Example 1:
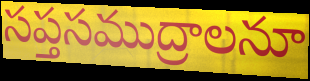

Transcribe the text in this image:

సప్తసముద్రాలనూ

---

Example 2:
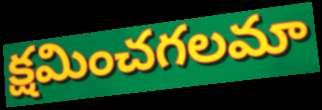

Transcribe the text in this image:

క్షమించగలమా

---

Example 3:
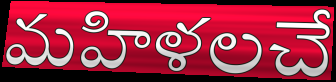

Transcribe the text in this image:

మహిళలచే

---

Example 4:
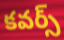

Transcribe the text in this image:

కవర్స్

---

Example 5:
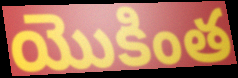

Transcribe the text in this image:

యొకింత